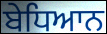
ਬੇਧਿਆਨ